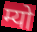
म्यो